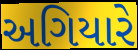
અગિયારે